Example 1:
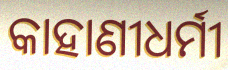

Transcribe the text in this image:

କାହାଣୀଧର୍ମୀ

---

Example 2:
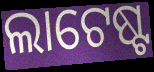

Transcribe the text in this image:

ଲାଟେଷ୍ଟ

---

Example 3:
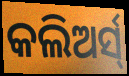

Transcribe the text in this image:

କଲିଅର୍ସ୍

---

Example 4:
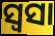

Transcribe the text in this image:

ସ୍ୱସା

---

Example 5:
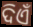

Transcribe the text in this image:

ଦିଏଁ